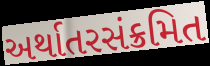
અર્થાતરસંક્રમિત